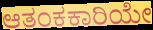
ಆತಂಕಕಾರಿಯೇ